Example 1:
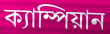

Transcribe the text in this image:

ক্যাম্পিয়ান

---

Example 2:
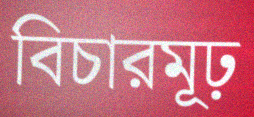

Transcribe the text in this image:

বিচারমূঢ়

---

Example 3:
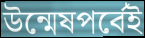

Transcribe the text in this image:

উন্মেষপর্বেই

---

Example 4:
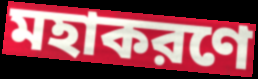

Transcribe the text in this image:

মহাকরণে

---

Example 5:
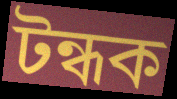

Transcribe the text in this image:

টন্ধক